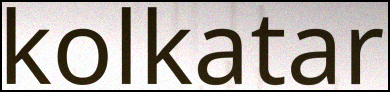
kolkatar